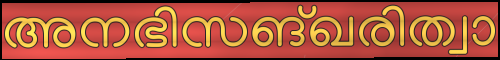
അനഭിസങ്ഖരിത്വാ